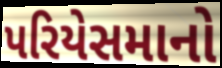
પરિયેસમાનો